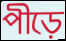
পীড়ে